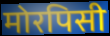
मोरपिसी